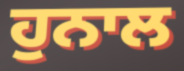
ਹੁਨਾਲ